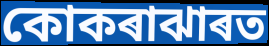
কোকৰাঝাৰত